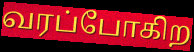
வரப்போகிற